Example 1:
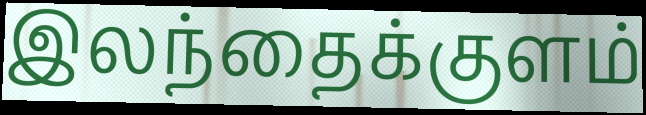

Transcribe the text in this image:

இலந்தைக்குளம்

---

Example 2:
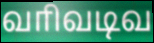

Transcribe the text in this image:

வரிவடிவ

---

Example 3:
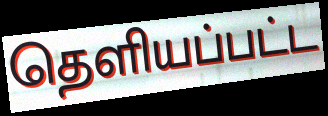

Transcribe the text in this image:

தெளியப்பட்ட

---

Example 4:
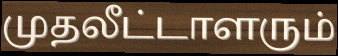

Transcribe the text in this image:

முதலீட்டாளரும்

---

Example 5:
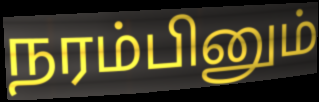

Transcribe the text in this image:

நரம்பினும்